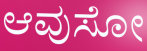
ಆವುಸೋ